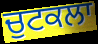
ਚੁਟਕਲਾ